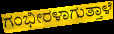
ಗಂಭೀರಳಾಗುತ್ತಾಳೆ